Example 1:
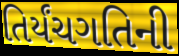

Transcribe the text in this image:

તિર્યંચગતિની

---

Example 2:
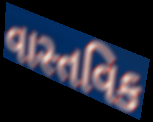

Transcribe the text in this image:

વાસ્તવિક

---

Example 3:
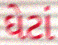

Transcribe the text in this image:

ઘેટાં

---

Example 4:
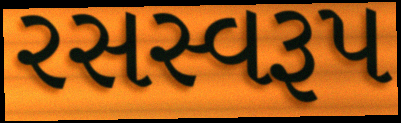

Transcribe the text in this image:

રસસ્વરૂપ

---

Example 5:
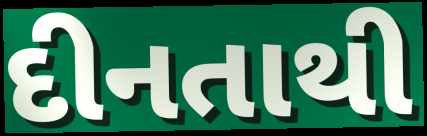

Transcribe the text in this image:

દીનતાથી